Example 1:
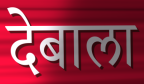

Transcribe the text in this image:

देबाला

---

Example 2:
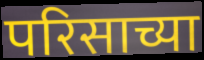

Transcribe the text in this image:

परिसाच्या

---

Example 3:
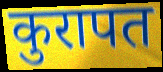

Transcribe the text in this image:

कुरापत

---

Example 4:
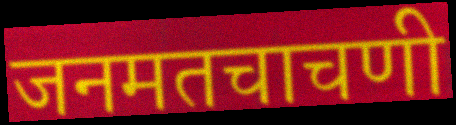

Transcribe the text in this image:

जनमतचाचणी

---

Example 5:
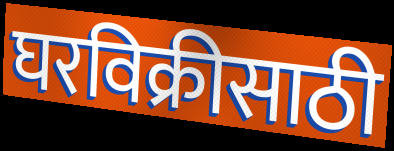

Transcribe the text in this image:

घरविक्रीसाठी